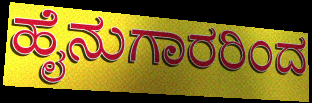
ಹೈನುಗಾರರಿಂದ